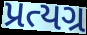
પ્રત્યગ્ર